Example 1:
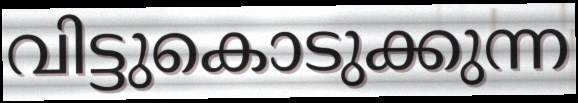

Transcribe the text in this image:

വിട്ടുകൊടുക്കുന്ന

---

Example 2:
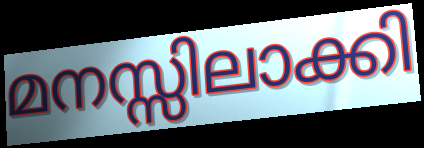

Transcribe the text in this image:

മനസ്സിലാക്കി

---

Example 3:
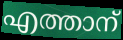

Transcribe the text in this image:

എത്താന്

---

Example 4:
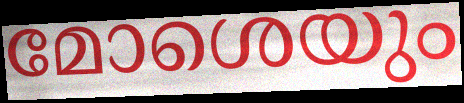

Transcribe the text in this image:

മോശെയും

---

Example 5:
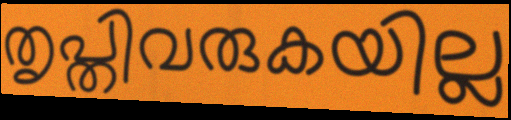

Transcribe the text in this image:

തൃപ്തിവരുകയില്ല